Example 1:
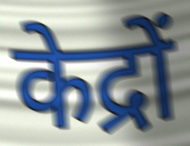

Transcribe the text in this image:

केद्रों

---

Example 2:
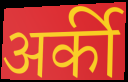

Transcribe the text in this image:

अर्की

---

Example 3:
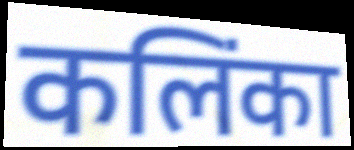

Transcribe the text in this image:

कलिंका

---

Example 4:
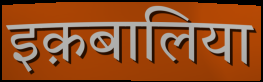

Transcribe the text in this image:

इक़बालिया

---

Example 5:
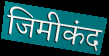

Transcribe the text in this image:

जिमीकंद